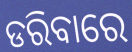
ଡରିବାରେ